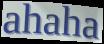
ahaha